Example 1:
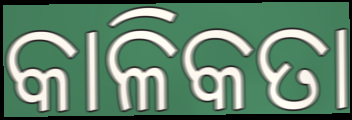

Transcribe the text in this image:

କାଳିକତା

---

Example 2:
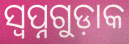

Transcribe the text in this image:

ସ୍ୱପ୍ନଗୁଡ଼ାକ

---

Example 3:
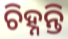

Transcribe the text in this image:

ଚିହ୍ନନ୍ତି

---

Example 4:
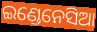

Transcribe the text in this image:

ଇଣ୍ଡେନେସିଆ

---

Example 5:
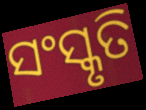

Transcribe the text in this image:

ସଂସ୍କୃତି